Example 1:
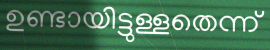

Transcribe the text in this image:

ഉണ്ടായിട്ടുള്ളതെന്ന്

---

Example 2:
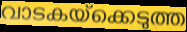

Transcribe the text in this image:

വാടകയ്‌ക്കെടുത്ത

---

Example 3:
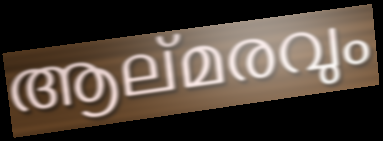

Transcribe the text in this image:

ആല്മരവും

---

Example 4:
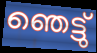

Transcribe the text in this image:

ഞെട്ടു്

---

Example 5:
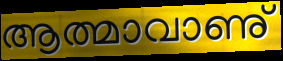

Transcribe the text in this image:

ആത്മാവാണു്